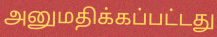
அனுமதிக்கப்பட்டது